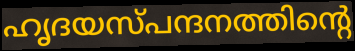
ഹൃദയസ്പന്ദനത്തിന്റെ